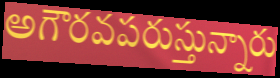
అగౌరవపరుస్తున్నారు